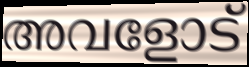
അവളോട്